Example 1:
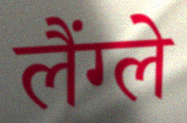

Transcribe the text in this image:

लैंग्ले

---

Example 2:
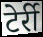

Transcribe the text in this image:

टेर्री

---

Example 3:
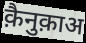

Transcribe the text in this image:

क़ैनुक़ाअ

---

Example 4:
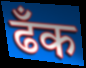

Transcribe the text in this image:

ढँक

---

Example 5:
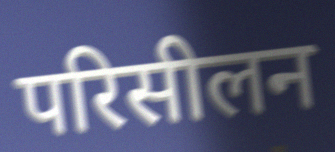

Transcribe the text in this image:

परिसीलन